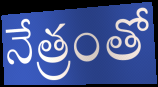
నేత్రంతో